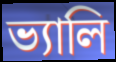
ভ্যালি